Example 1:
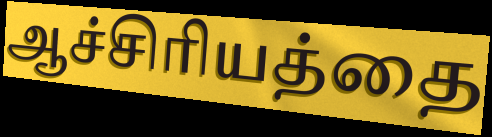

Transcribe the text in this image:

ஆச்சிரியத்தை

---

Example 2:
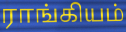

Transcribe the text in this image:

ராங்கியம்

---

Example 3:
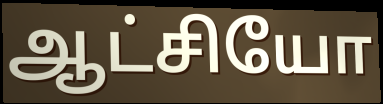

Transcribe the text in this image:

ஆட்சியோ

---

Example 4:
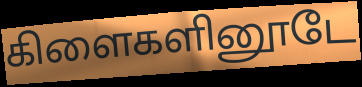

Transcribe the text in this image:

கிளைகளினூடே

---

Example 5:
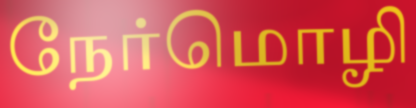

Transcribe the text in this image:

நேர்மொழி